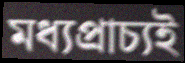
মধ্যপ্রাচ্যই